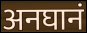
अनघानं